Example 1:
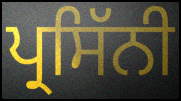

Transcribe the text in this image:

ਪ੍ਰਸਿੱਨੀ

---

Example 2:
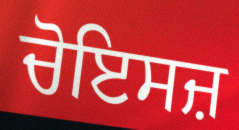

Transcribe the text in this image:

ਚੋਇਸਜ਼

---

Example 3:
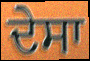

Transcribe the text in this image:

ਦੇਸਾ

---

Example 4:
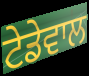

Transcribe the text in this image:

ਟੇਡੇਵਾਲ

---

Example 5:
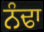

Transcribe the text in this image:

ਨੰਢਾ